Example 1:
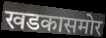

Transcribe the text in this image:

खडकासमोर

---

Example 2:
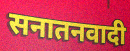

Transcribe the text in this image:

सनातनवादी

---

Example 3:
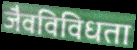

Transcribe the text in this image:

जैवविविधता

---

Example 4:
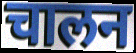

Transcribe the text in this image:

चालन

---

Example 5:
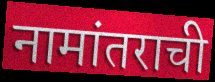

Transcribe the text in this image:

नामांतराची